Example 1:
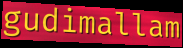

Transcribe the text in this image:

gudimallam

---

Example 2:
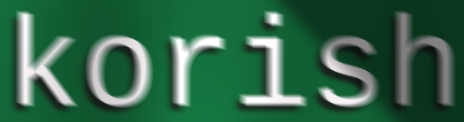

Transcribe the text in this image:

korish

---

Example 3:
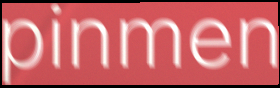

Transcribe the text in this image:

pinmen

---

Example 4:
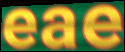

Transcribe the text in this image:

eae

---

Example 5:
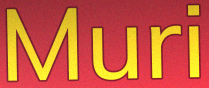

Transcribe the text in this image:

Muri